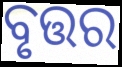
ବୃତ୍ତର